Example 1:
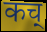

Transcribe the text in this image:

कच्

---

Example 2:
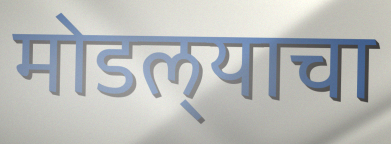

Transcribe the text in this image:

मोडल्याचा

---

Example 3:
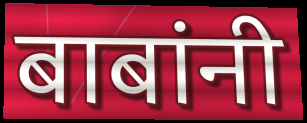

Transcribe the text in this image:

बाबांनी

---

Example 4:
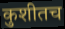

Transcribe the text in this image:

कुशीतच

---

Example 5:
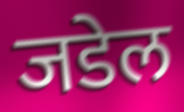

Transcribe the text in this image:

जडेल